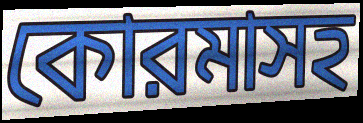
কোরমাসহ